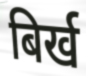
बिर्ख